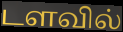
டளவில்